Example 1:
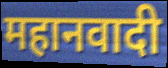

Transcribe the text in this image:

महानवादी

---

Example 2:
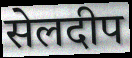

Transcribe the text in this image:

सेलदीप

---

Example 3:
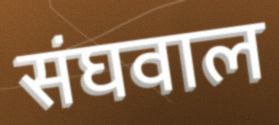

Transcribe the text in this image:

संघवाल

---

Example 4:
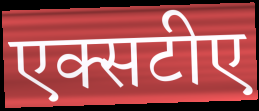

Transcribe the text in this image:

एक्सटीए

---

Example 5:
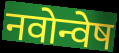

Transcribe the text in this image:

नवोन्वेष